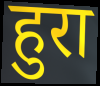
हुरा